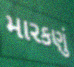
મારકણું